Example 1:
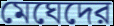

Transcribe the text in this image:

মেঘেদের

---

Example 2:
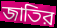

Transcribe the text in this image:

জাতির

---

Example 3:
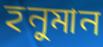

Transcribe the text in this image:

হনুমান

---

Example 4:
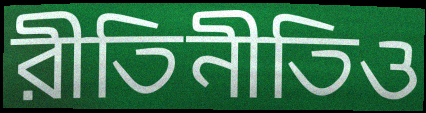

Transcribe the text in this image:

রীতিনীতিও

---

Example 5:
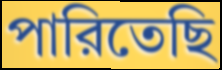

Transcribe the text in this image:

পারিতেছি